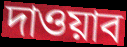
দাওয়াব